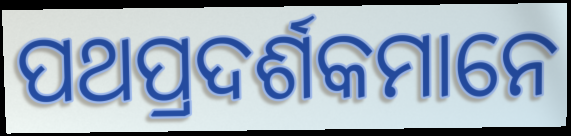
ପଥପ୍ରଦର୍ଶକମାନେ